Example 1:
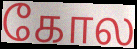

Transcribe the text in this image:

கோல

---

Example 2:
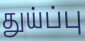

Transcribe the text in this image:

துய்ப்பு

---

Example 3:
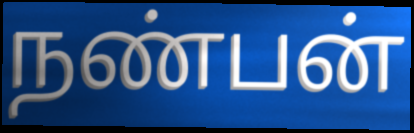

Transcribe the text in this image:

நண்பன்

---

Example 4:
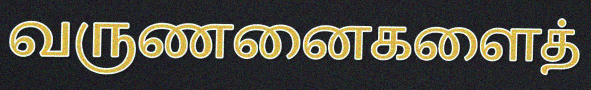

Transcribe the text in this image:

வருணனைகளைத்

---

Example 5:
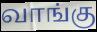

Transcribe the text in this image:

வாங்கு